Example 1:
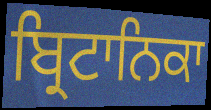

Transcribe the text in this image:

ਬ੍ਰਿਟਾਨਿਕਾ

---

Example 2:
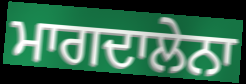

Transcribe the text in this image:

ਮਾਗਦਾਲੇਨਾ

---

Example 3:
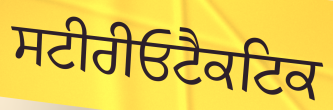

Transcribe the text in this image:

ਸਟੀਰੀਓਟੈਕਟਿਕ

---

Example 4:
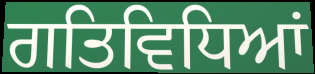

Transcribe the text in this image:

ਗਤਿਵਿਧਿਆਂ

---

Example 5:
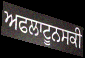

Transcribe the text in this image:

ਅਫਲਾਟੂਨਸਕੀ